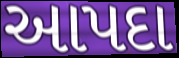
આપદા